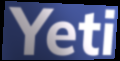
Yeti